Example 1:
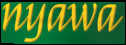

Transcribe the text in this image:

nyawa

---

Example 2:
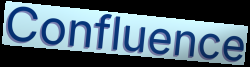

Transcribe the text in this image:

Confluence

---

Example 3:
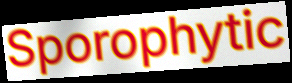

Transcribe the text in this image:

Sporophytic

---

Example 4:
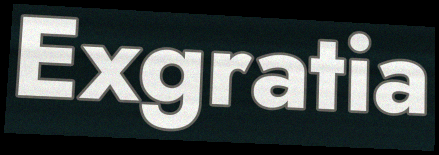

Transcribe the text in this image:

Exgratia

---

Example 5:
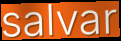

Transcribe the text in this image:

salvar